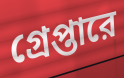
গ্রেপ্তারে